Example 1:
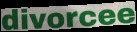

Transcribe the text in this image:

divorcee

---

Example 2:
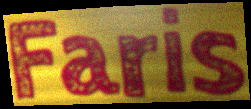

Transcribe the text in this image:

Faris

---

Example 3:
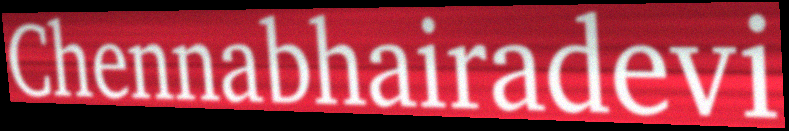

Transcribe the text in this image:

Chennabhairadevi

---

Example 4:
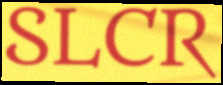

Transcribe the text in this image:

SLCR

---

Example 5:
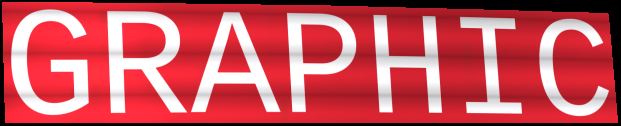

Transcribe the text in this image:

GRAPHIC